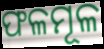
ଫଳମୂଳ